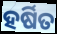
ହର୍ଷିତ